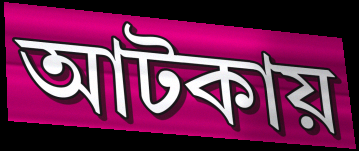
আটকায়